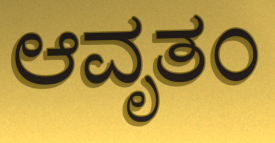
ಆವೃತಂ